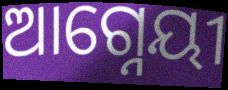
ଆଗ୍ନେୟୀ